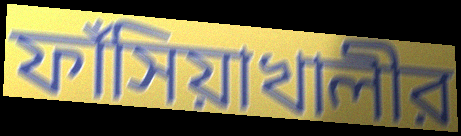
ফাঁসিয়াখালীর